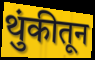
थुंकीतून